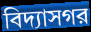
বিদ্যাসগর